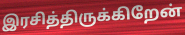
இரசித்திருக்கிறேன்